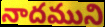
నాదముని